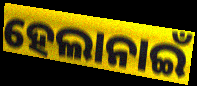
ହେଲାନାଇଁ